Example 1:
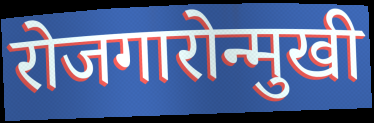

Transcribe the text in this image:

रोजगारोन्मुखी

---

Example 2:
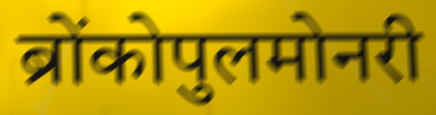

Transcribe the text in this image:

ब्रोंकोपुलमोनरी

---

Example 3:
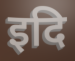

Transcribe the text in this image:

इदि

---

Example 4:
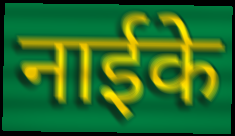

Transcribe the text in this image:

नाईके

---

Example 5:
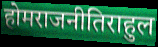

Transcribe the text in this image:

होमराजनीतिराहुल